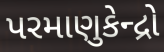
પરમાણુકેન્દ્રો